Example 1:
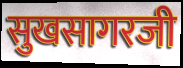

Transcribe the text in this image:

सुखसागरजी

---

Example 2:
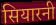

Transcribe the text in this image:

सियारनी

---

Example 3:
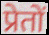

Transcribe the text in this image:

प्रेतों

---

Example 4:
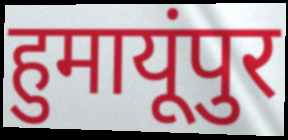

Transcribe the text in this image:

हुमायूंपुर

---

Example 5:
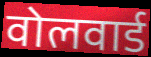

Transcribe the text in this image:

वोलवार्ड